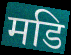
मडि